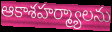
ఆకాశహర్మ్యాలను